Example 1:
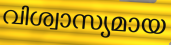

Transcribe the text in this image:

വിശ്വാസ്യമായ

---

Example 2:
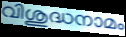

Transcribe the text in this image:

വിശുദ്ധനാമം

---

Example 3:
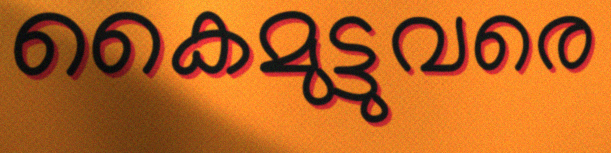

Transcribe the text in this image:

കൈമുട്ടുവരെ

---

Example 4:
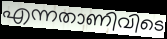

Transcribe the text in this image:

എന്നതാണിവിടെ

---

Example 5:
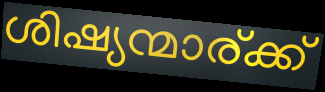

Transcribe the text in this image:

ശിഷ്യന്മാര്ക്ക്